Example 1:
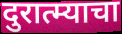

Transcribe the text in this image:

दुरात्म्याचा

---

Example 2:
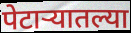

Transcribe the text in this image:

पेटाऱ्यातल्या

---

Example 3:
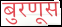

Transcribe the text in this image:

बुरणूस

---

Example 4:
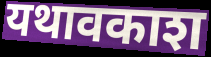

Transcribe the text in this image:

यथावकाश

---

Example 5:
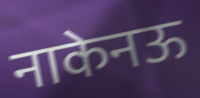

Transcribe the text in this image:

नाकेनऊ